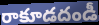
రాకూడదండీ